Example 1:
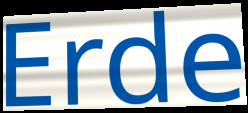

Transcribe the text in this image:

Erde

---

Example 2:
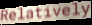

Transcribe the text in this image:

Relatively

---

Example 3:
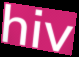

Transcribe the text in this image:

hiv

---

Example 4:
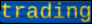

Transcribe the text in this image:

trading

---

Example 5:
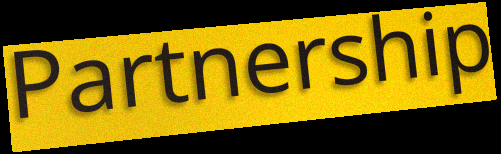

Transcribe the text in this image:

Partnership